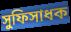
সুফিসাধক